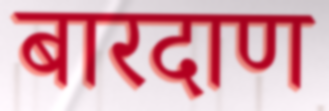
बारदाण